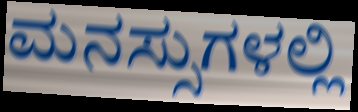
ಮನಸ್ಸುಗಳಲ್ಲಿ